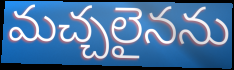
మచ్చలైనను